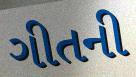
ગીતની